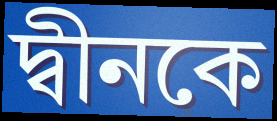
দ্বীনকে